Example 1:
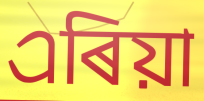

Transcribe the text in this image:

এৰিয়া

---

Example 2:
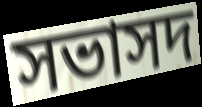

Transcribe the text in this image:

সভাসদ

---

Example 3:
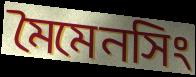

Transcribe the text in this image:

মৈমেনসিং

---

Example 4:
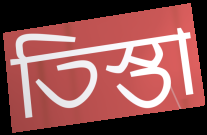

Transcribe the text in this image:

তিস্তা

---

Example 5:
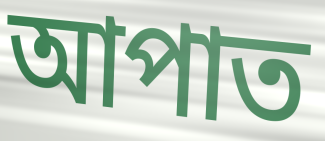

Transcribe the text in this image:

আপাত